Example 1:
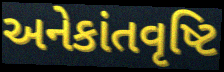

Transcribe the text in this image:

અનેકાંતવૃષ્ટિ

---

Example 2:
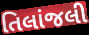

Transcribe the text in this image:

તિલાંજલી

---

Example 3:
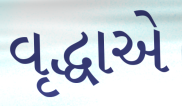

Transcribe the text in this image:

વૃદ્ધાએ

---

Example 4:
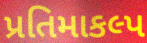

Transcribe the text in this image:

પ્રતિમાકલ્પ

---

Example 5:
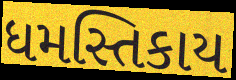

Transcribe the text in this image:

ધમસ્તિકાય